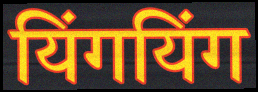
यिंगयिंग